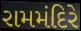
રામમંદિરે